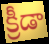
క్రీడా